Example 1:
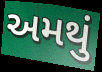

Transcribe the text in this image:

અમથું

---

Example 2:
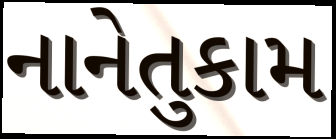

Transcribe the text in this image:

નાનેતુકામ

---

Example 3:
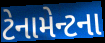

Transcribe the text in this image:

ટેનામેન્ટના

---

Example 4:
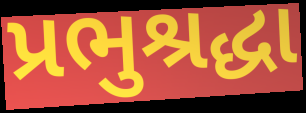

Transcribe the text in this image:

પ્રભુશ્રદ્ધા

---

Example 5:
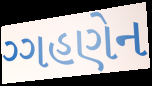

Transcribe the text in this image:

ગ્ગહણેન